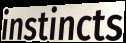
instincts